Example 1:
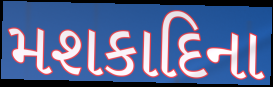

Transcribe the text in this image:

મશકાદિના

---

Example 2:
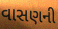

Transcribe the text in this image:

વાસણની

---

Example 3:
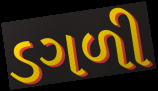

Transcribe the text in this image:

ડગળી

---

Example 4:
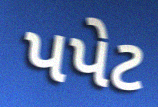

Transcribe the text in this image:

પપેટ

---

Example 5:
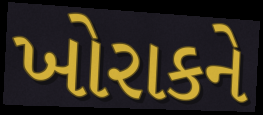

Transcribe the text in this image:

ખોરાકને